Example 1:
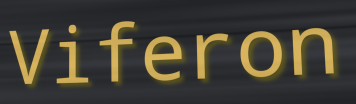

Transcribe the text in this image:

Viferon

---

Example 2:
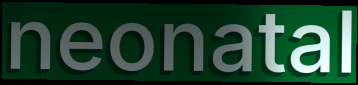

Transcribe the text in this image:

neonatal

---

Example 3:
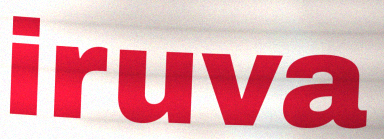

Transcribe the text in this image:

iruva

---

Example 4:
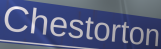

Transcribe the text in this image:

Chestorton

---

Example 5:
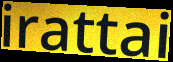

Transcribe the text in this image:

irattai